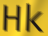
Hk